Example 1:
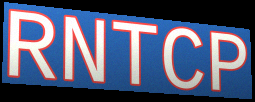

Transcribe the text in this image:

RNTCP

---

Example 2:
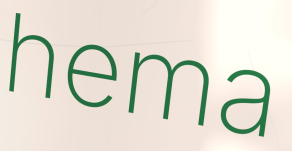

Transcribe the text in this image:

hema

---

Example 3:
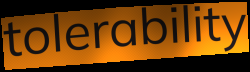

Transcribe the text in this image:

tolerability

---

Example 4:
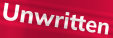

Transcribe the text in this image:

Unwritten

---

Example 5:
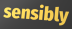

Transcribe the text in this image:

sensibly